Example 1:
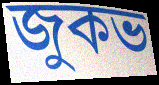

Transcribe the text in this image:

জুকভ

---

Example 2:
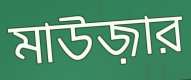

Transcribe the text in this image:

মাউজ়ার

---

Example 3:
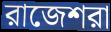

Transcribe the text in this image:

রাজেশরা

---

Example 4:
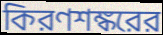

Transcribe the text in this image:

কিরণশঙ্করের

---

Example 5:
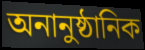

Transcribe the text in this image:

অনানুষ্ঠানিক